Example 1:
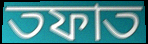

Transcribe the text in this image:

তফাত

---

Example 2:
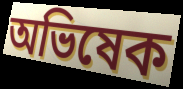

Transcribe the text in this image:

অভিষেক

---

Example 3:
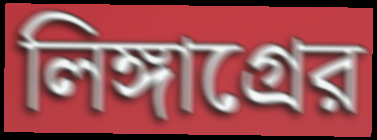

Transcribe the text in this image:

লিঙ্গাগ্রের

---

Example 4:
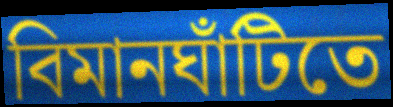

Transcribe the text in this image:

বিমানঘাঁটিতে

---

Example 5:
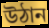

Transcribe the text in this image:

উঠান